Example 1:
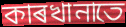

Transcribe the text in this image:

কাৰখানাতে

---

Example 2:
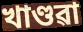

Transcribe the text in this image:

খাণ্ডৱা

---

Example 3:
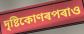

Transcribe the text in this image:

দৃষ্টিকোণৰপৰাও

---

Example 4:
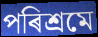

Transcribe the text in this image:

পৰিশ্ৰমে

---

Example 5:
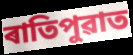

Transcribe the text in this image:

ৰাতিপুৱাত